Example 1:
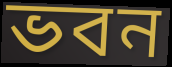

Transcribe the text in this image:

ভবন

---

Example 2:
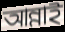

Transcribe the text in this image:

আন্নাই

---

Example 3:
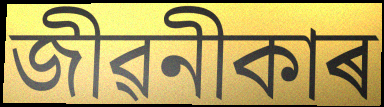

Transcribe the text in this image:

জীৱনীকাৰ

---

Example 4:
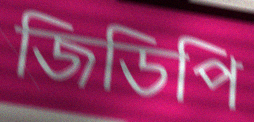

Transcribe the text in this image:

জিডিপি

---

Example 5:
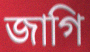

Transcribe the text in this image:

জাগি